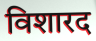
विशारद